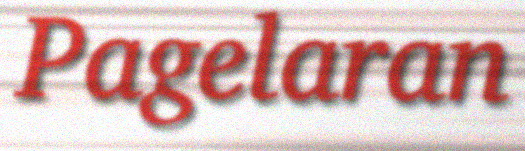
Pagelaran